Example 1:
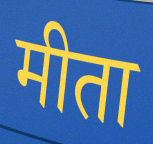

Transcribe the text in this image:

मीता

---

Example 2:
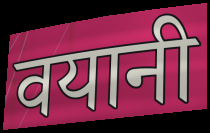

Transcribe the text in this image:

वयानी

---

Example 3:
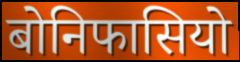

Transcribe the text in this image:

बोनिफासियो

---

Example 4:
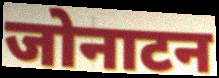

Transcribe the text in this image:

जोनाटन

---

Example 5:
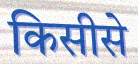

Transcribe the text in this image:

किसीसे